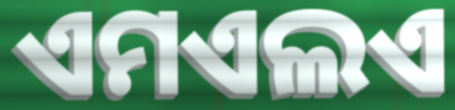
ଏମଏଲଏ